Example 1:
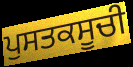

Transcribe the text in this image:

ਪੁਸਤਕਸੂਚੀ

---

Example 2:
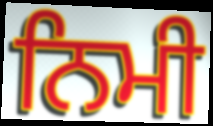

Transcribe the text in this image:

ਨਿਮੀ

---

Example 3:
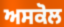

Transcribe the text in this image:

ਅਸਕੋਲ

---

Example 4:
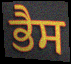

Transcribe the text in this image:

ਭੈਸ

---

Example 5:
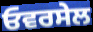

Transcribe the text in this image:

ਓਵਰਸੇਲ